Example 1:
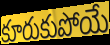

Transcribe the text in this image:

కూరుకుపోయే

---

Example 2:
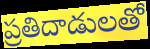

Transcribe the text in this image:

ప్రతిదాడులతో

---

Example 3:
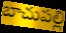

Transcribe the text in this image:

బాచుపల్లి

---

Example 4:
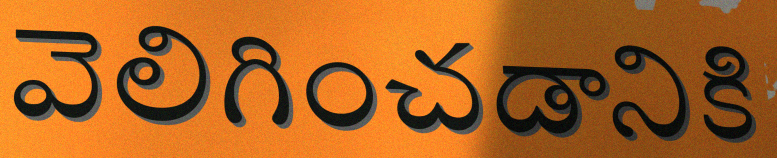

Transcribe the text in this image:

వెలిగించడానికి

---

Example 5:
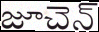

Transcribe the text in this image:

జూచెన్